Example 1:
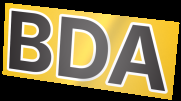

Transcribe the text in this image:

BDA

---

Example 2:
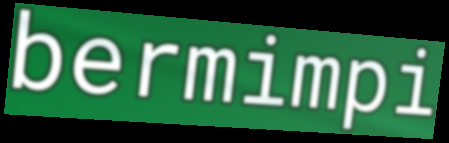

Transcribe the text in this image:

bermimpi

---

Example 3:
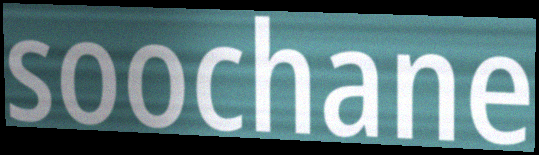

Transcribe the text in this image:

soochane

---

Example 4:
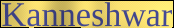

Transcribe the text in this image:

Kanneshwar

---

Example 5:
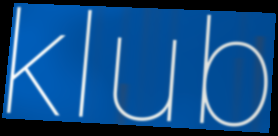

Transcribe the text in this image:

klub